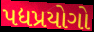
પદ્યપ્રયોગો